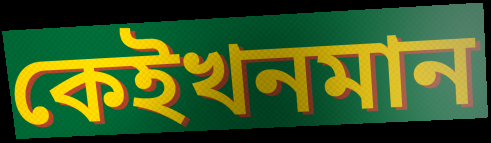
কেইখনমান